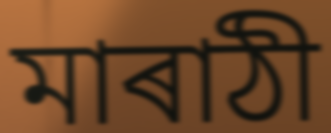
মাৰাঠী